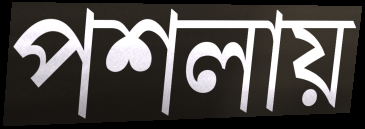
পশলায়